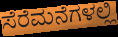
ಸೆರೆಮನೆಗಳಲ್ಲಿ